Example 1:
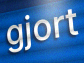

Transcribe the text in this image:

gjort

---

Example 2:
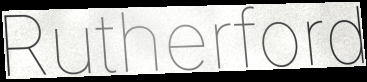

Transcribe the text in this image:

Rutherford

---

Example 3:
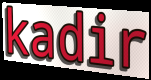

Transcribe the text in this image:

kadir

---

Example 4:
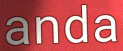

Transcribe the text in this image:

anda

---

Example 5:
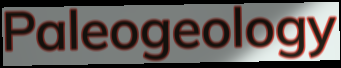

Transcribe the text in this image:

Paleogeology